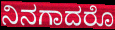
ನಿನಗಾದರೊ